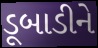
ડૂબાડીને